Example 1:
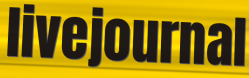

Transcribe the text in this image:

livejournal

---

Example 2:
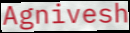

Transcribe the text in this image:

Agnivesh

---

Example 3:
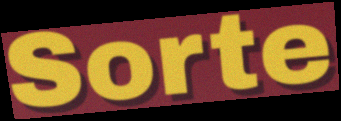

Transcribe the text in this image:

Sorte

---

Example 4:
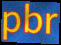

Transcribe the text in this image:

pbr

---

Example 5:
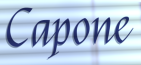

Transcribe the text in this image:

Capone